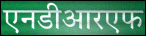
एनडीआरएफ